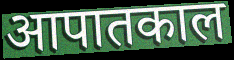
आपातकाल